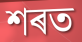
শৰত